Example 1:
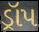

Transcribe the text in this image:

ડ્રૉપ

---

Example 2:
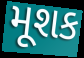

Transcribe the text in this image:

મૂશક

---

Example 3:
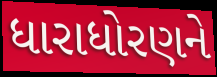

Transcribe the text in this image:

ધારાધોરણને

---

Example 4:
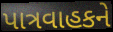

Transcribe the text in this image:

પાત્રવાહકને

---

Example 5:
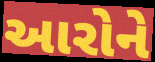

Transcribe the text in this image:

આરોને